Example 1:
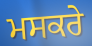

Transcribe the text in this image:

ਮਸਕਰੇ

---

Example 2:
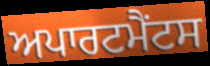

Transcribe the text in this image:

ਅਪਾਰਟਮੈਂਟਸ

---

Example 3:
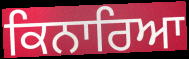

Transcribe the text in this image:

ਕਿਨਾਰਿਆ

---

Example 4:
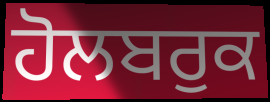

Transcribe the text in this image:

ਹੋਲਬਰੁਕ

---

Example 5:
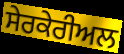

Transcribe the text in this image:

ਸੇਰਕੇਰੀਅਲ